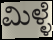
ಮಿಳ್ಳೆ